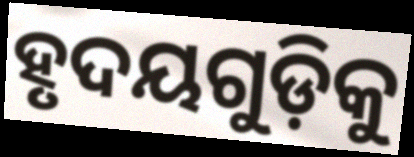
ହୃଦୟଗୁଡ଼ିକୁ